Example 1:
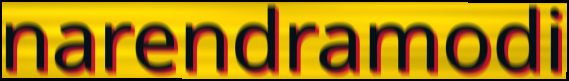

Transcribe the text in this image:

narendramodi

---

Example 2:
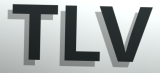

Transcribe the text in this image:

TLV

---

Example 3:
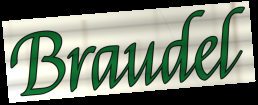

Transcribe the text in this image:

Braudel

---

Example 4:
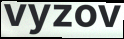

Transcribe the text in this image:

vyzov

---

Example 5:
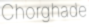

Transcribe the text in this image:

Chorghade